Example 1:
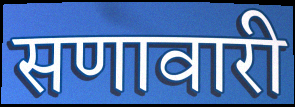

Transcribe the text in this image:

सणावारी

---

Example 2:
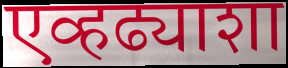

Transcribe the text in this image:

एव्हढ्याशा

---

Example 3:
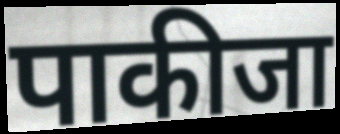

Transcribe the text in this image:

पाकीजा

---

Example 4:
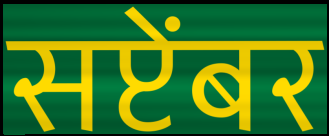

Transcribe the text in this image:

सप्टेंबर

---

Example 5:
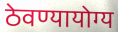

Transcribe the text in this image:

ठेवण्यायोग्य